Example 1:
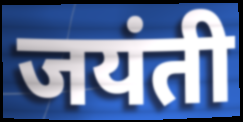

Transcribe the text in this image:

जयंती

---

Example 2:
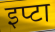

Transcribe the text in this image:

इप्टा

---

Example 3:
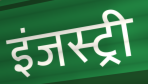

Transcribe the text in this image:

इंजस्ट्री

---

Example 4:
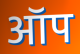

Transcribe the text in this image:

ऑप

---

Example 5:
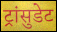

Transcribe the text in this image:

ट्रांसुडेट